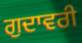
ਗੁਦਾਵਰੀ